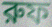
রুফ